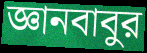
জ্ঞানবাবুর